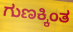
ಗುಣಕ್ಕಿಂತ